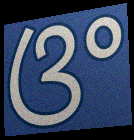
ଓଂ